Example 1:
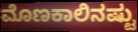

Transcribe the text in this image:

ಮೊಣಕಾಲಿನಷ್ಟು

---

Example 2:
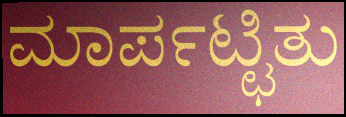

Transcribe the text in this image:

ಮಾರ್ಪಟ್ಟಿತು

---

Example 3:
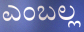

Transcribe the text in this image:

ಎಂಬಲ್ಲ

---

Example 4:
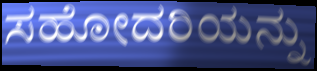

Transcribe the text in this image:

ಸಹೋದರಿಯನ್ನು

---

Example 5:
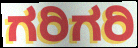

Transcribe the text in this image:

ಗರಿಗರಿ